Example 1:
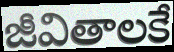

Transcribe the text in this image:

జీవితాలకే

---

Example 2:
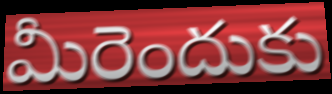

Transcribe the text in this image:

మీరెందుకు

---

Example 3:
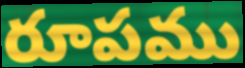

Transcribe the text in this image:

రూపము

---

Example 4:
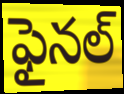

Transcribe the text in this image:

ఫైనల్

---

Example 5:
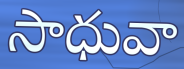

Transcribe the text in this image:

సాధువా